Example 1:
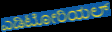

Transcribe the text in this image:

ಎಡಿಟೋರಿಯಲ್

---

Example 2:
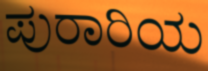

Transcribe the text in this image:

ಪುರಾರಿಯ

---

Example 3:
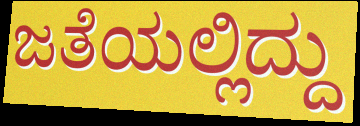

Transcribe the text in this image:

ಜತೆಯಲ್ಲಿದ್ದು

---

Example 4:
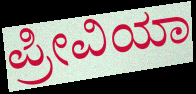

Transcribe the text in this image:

ಪ್ರೀವಿಯಾ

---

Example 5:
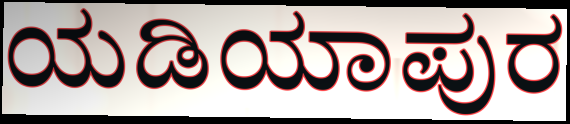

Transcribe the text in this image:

ಯಡಿಯಾಪುರ